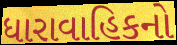
ધારાવાહિકનો